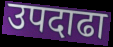
उपदाढा